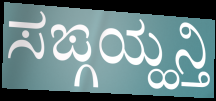
ಸಙ್ಗಯ್ಹನ್ತಿ